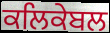
ਕਲਿਕੇਬਲ